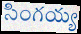
సింగయ్య